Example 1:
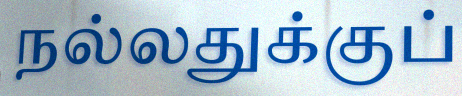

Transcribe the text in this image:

நல்லதுக்குப்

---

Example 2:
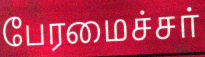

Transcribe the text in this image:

பேரமைச்சர்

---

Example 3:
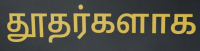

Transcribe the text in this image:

தூதர்களாக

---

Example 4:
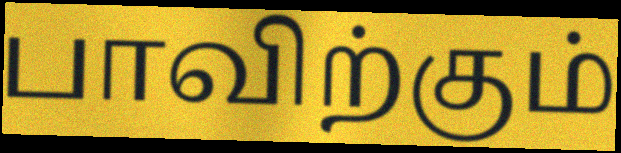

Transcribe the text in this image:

பாவிற்கும்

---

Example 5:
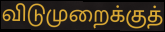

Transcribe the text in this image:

விடுமுறைக்குத்